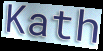
Kath